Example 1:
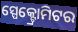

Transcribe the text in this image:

ସ୍ପେକ୍ଟ୍ରୋମିଟର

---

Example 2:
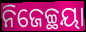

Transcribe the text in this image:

ନିଜେଚ୍ଛୟା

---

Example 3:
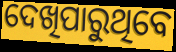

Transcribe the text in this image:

ଦେଖିପାରୁଥିବେ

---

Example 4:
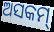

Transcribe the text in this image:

ଅସକମ୍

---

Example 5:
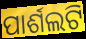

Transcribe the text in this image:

ପାର୍ଶଲଟି